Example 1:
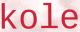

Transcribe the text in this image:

kole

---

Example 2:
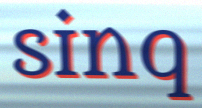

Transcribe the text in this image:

sinq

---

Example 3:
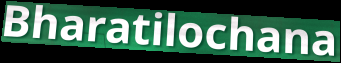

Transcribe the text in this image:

Bharatilochana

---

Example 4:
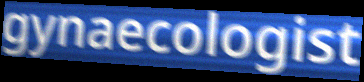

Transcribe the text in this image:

gynaecologist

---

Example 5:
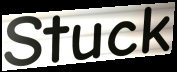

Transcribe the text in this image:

Stuck